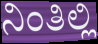
ನಿಂತಿಲ್ಲಿ